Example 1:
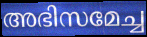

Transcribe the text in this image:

അഭിസമേച്ച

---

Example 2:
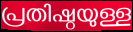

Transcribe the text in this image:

പ്രതിഷ്ഠയുള്ള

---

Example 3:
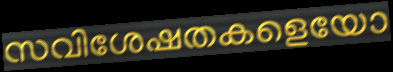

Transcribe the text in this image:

സവിശേഷതകളെയോ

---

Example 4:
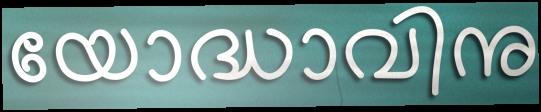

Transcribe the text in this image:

യോദ്ധാവിനു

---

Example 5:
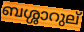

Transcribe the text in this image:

ബശ്ശാറുല്